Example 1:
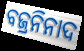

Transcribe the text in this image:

ବଜ୍ରନିନାଦ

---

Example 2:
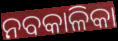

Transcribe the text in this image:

ନବକାଳିକା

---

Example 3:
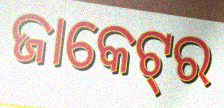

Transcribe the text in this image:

ଜାକେଟ୍‌ର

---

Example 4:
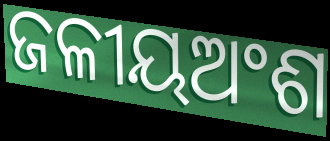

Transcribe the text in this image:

ଜଳୀୟଅଂଶ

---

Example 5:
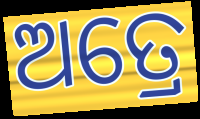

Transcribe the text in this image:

ଅତ୍ରେ